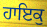
ਹਾਇਕੁ